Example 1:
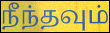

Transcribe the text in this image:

நீந்தவும்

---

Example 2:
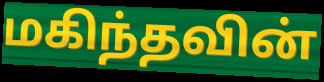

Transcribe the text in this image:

மகிந்தவின்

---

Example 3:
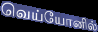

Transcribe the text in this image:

வெய்யோனில்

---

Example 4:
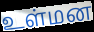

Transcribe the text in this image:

உள்மன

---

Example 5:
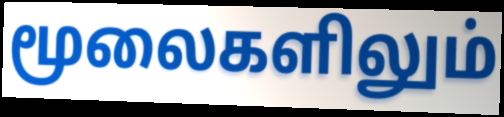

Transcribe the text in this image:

மூலைகளிலும்